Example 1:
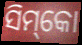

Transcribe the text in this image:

ସିମ୍‌କୋ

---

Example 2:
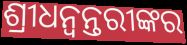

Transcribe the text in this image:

ଶ୍ରୀଧନ୍ୱନ୍ତରୀଙ୍କର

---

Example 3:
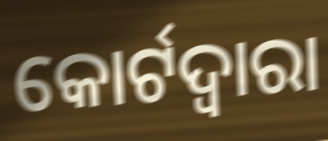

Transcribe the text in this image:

କୋର୍ଟଦ୍ୱାରା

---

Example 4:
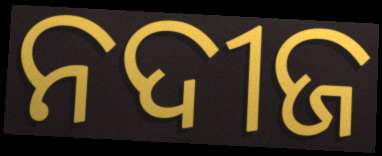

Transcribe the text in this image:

ନଦୀଜ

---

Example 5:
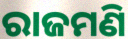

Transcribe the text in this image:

ରାଜମଣି